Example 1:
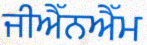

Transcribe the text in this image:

ਜੀਐੱਨਐੱਮ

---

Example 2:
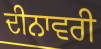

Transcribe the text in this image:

ਦੀਨਾਵਰੀ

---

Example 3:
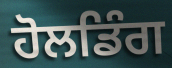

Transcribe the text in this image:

ਹੋਲਡਿੰਗ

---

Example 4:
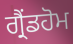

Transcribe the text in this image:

ਗ੍ਰੈਂਡਹੋਮ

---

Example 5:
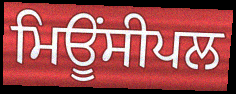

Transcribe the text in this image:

ਮਿਊਂਸੀਪਲ